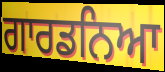
ਗਾਰਡਨਿਆ